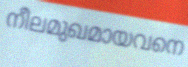
നീലമുഖമായവനെ